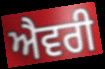
ਐਵਰੀ